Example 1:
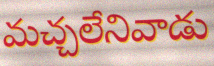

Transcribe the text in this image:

మచ్చలేనివాడు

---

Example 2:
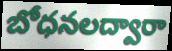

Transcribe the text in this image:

బోధనలద్వారా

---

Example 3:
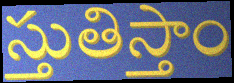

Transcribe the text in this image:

స్తుతిస్తాం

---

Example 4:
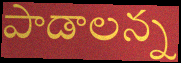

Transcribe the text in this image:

పాడాలన్న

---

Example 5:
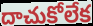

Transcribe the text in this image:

దాచుకోలేక